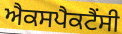
ਐਕਸਪੈਕਟੈਂਸੀ